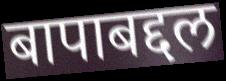
बापाबद्दल